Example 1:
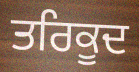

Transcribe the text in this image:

ਤਰਿਕੂਦ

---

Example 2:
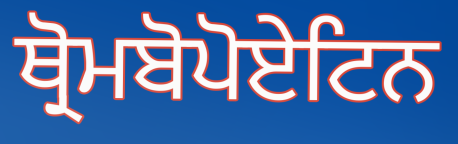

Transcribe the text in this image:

ਥ੍ਰੋਮਬੋਪੋਏਟਿਨ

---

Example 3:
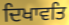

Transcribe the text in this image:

ਦਿਖਾਵਤਿ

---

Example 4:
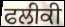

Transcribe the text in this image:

ਫਲੀਕੀ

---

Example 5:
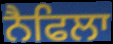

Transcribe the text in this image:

ਨੈਫਿਲਾ